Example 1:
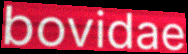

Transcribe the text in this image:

bovidae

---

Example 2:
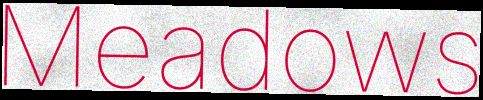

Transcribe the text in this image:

Meadows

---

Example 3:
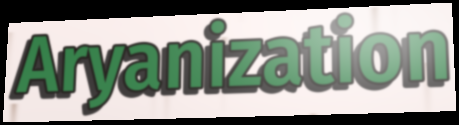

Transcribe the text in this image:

Aryanization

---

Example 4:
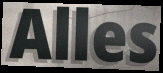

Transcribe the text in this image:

Alles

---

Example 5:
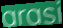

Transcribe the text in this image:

arasi